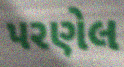
પરણેલ